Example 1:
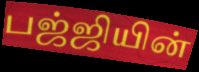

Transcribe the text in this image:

பஜ்ஜியின்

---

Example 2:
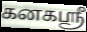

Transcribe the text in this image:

கனகஸ்ரீ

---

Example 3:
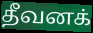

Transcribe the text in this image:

தீவனக்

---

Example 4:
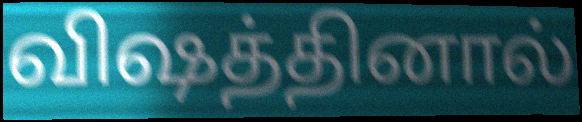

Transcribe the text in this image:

விஷத்தினால்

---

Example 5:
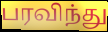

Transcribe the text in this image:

பரவிந்து